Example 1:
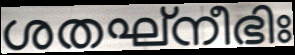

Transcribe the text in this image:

ശതഘ്നീഭിഃ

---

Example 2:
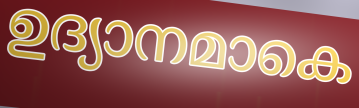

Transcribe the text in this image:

ഉദ്യാനമാകെ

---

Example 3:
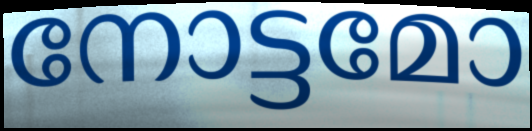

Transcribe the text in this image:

നോട്ടമോ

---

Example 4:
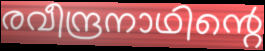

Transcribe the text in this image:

രവീന്ദ്രനാഥിന്റെ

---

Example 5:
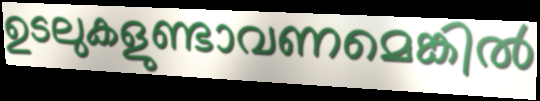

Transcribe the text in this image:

ഉടലുകളുണ്ടാവണമെങ്കിൽ